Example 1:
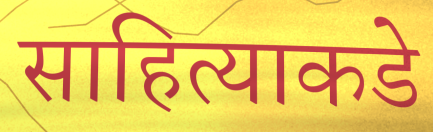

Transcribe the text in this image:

साहित्याकडे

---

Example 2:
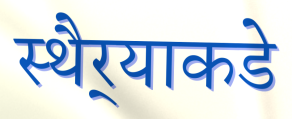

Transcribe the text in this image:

स्थैर्याकडे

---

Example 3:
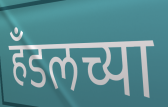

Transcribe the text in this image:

हॅंडलच्या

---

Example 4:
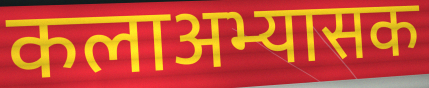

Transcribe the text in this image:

कलाअभ्यासक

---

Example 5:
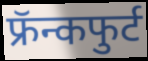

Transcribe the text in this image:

फ्रॅन्कफुर्ट